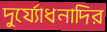
দুর্য্যোধনাদির